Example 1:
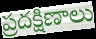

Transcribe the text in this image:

ప్రదక్షిణాలు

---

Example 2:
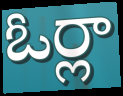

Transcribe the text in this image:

ఓర్లా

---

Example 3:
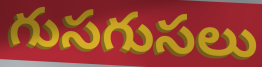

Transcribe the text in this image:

గుసగుసలు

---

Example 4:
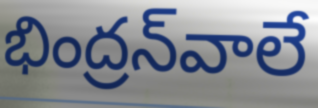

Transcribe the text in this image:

భింద్రన్‌వాలే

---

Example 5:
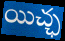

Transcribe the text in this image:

యిచ్ఛ